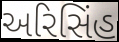
અરિસિંહ